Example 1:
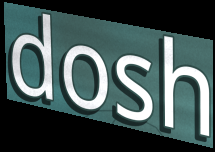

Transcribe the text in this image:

dosh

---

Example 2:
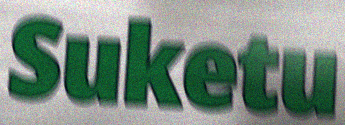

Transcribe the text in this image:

Suketu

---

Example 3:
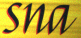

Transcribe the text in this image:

sna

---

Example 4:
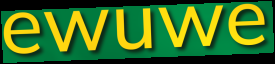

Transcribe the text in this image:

ewuwe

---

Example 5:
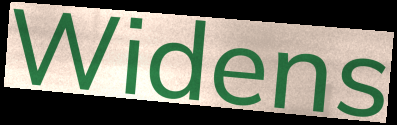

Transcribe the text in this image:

Widens